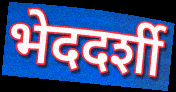
भेददर्शी